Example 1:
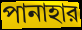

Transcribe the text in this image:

পানাহার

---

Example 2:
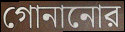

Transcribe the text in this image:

গোনানোর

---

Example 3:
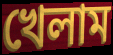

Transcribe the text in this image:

খেলাম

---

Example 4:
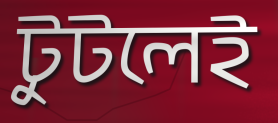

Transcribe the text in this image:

টুটলেই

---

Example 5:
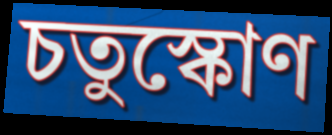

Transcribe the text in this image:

চতুস্কোণ